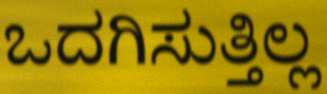
ಒದಗಿಸುತ್ತಿಲ್ಲ